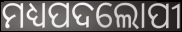
ମଧ୍ଯପଦଲୋପୀ